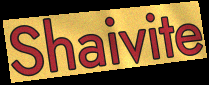
Shaivite